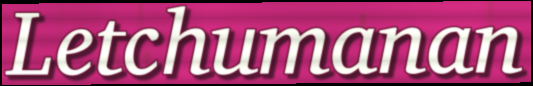
Letchumanan